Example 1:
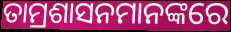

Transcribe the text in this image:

ତାମ୍ରଶାସନମାନଙ୍କରେ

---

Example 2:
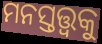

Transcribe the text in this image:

ମନସ୍ତତ୍ତ୍ୱକୁ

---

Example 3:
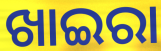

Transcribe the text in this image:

ଖାଇରା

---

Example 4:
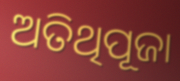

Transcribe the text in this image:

ଅତିଥିପୂଜା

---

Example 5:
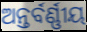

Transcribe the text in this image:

ଅନ୍ତର୍ବର୍ଣ୍ଣୀୟ